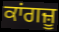
ਕਾਂਗਜ਼ੂ